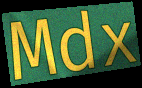
Mdx